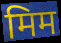
मिम